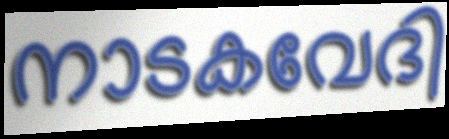
നാടകവേദി